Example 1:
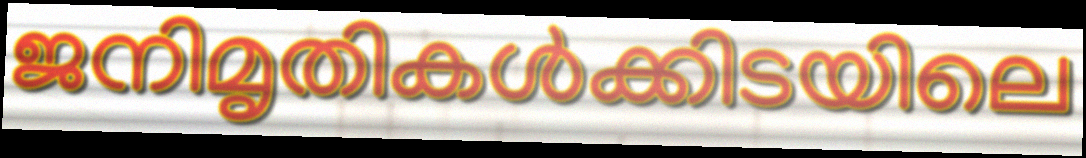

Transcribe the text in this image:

ജനിമൃതികൾക്കിടയിലെ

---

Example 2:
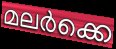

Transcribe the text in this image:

മലർക്കെ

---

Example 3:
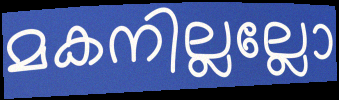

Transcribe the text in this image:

മകനില്ലല്ലോ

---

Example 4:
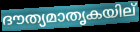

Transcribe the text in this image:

ദൗത്യമാതൃകയില്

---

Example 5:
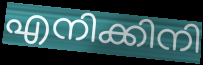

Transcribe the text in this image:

എനിക്കിനി